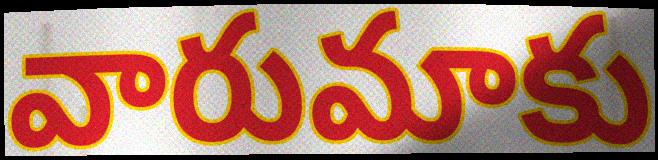
వారుమాకు